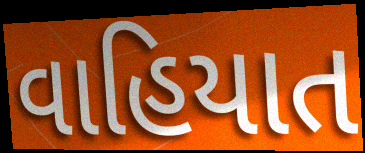
વાહિયાત